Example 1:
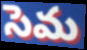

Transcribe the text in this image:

సెమ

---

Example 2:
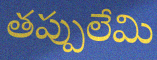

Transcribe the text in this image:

తప్పులేమి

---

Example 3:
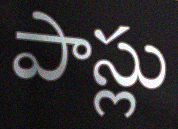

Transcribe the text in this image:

పాస్లు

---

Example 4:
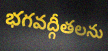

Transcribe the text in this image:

భగవద్గీతలను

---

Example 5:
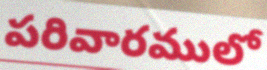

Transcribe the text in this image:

పరివారములో